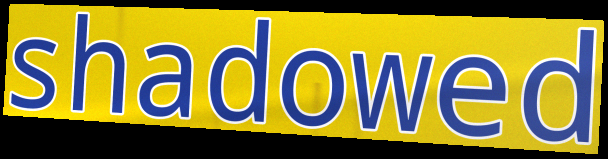
shadowed